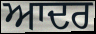
ਆਦਰ